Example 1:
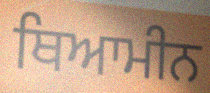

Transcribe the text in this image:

ਥਿਆਮੀਨ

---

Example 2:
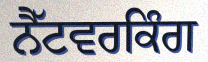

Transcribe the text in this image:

ਨੈੱਟਵਰਕਿੰਗ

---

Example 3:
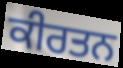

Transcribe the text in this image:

ਕੀਰਤਨ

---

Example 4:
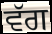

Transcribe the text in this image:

ਵੱਗ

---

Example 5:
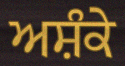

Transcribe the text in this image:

ਅਸ਼ੰਕੇ